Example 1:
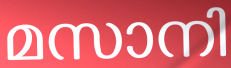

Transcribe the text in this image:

മസാനി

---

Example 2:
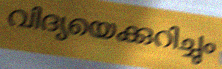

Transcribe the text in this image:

വിദ്യയെക്കുറിച്ചും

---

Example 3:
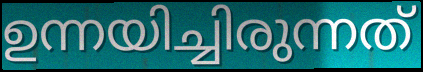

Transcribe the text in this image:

ഉന്നയിച്ചിരുന്നത്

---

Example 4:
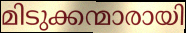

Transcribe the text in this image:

മിടുക്കന്മാരായി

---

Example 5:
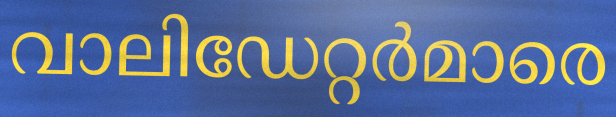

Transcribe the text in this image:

വാലിഡേറ്റർമാരെ